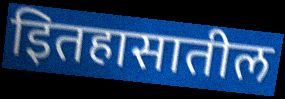
इितहासातील